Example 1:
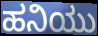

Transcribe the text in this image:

ಹನಿಯು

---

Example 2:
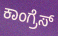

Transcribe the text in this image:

ಕಾಂಗ್ರೆಸ್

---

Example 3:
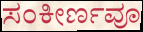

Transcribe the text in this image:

ಸಂಕೀರ್ಣವೂ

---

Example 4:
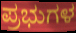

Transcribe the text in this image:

ಪ್ರಭುಗಳ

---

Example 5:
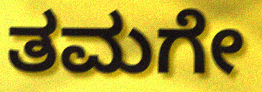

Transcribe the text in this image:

ತಮಗೇ